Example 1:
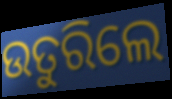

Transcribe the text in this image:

ଉତୁରିଲେ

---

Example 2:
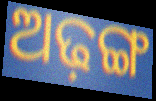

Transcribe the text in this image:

ଅଢ଼ଙ୍ଗ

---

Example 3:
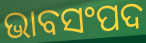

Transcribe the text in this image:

ଭାବସଂପଦ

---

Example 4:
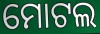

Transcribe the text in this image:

ମୋଟଲ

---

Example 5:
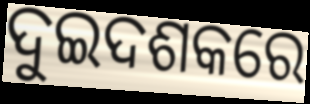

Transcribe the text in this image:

ଦୁଇଦଶକରେ